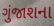
ગુંજાશના